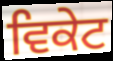
ਵਿਕੇਟ